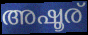
അഷൂര്